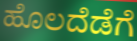
ಹೊಲದೆಡೆಗೆ